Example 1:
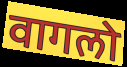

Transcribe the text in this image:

वागलो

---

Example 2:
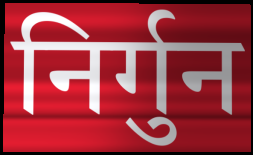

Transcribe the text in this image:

निर्गुन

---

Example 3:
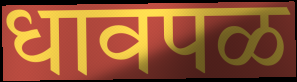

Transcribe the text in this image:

धावपळ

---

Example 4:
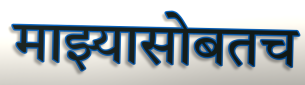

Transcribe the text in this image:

माझ्यासोबतच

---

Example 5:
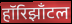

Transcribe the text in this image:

हॉरिझाँटल